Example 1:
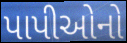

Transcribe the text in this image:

પાપીઓનો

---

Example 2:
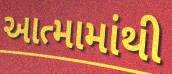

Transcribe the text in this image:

આત્મામાંથી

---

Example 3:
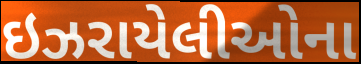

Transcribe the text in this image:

ઇઝરાયેલીઓના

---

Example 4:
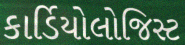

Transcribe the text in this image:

કાર્ડિયોલોજિસ્ટ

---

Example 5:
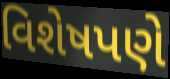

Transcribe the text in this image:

વિશેષપણે